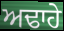
ਅਢਾਹੇ